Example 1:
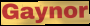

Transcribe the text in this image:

Gaynor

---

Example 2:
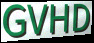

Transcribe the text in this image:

GVHD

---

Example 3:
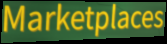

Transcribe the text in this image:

Marketplaces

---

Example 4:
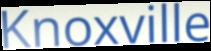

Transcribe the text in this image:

Knoxville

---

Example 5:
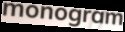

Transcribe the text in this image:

monogram